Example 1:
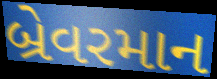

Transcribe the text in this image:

બ્રેવરમાન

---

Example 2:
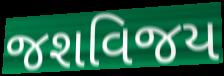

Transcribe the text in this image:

જશવિજય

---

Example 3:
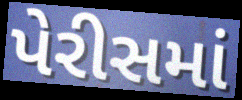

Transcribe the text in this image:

પેરીસમાં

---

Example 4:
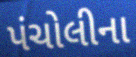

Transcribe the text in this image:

પંચોલીના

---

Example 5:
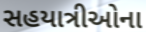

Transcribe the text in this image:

સહયાત્રીઓના